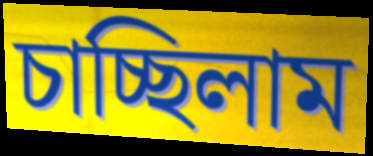
চাচ্ছিলাম